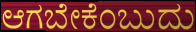
ಆಗಬೇಕೆಂಬುದು